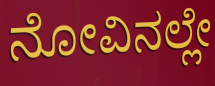
ನೋವಿನಲ್ಲೇ